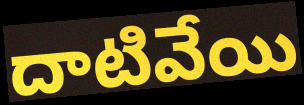
దాటివేయి